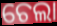
ଚେଲା